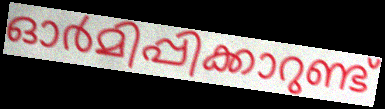
ഓർമിപ്പിക്കാറുണ്ട്